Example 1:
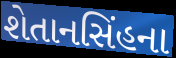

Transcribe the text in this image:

શેતાનસિંહના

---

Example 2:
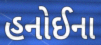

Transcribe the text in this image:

હનોઈના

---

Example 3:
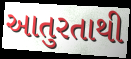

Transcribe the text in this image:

આતુરતાથી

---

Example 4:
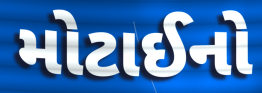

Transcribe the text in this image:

મોટાઈનો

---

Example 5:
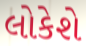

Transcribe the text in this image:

લોકેશે